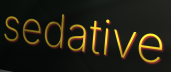
sedative